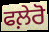
ਫਲ਼ੇਰੋ